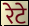
रेटे